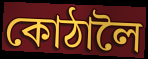
কোঠালৈ